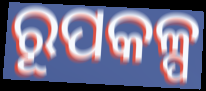
ରୂପକଳ୍ପ